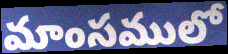
మాంసములో